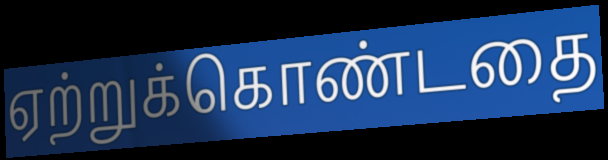
ஏற்றுக்கொண்டதை